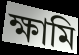
ক্ষামি